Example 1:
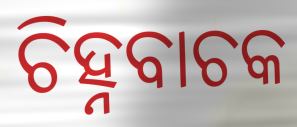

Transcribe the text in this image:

ଚିହ୍ନବାଚକ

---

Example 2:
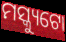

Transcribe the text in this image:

ମସ୍କ୍ୟୁଟୋ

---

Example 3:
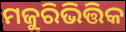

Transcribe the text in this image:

ମଜୁରିଭିତ୍ତିକ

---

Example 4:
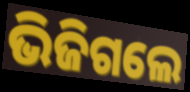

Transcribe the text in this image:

ଭିଜିଗଲେ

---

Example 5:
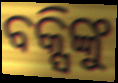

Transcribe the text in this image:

ବକ୍ସିଙ୍କୁ